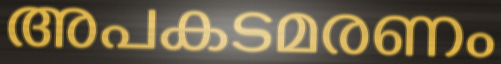
അപകടമരണം